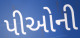
પીઓની